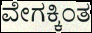
ವೇಗಕ್ಕಿಂತ